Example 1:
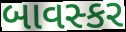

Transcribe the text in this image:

બાવસ્કર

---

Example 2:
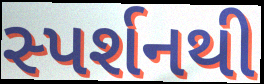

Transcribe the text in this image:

સ્પર્શનથી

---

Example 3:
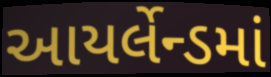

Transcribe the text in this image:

આયર્લેન્ડમાં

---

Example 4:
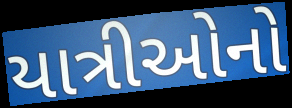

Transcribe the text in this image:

યાત્રીઓનો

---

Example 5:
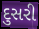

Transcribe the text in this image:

દુસરી